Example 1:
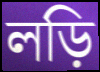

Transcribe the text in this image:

লড়ি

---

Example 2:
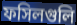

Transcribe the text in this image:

ফসিলগুলি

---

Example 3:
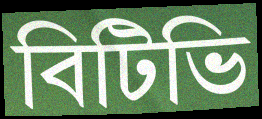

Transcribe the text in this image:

বিটিভি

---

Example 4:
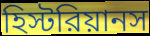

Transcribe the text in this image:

হিস্টরিয়ানস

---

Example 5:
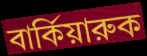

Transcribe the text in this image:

বার্কিয়ারুক